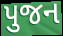
પુજન